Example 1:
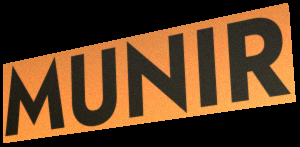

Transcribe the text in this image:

MUNIR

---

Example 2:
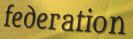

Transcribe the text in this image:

federation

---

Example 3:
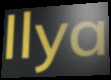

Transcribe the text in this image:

Ilya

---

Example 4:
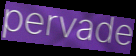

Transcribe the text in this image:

pervade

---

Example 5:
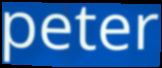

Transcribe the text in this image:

peter